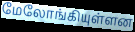
மேலோங்கியுள்ளன